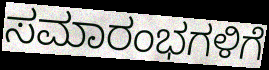
ಸಮಾರಂಭಗಳಿಗೆ